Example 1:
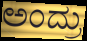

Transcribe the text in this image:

ಅಂದ್ರು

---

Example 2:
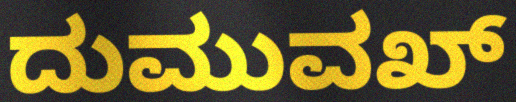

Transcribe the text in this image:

ದುಮುವಖ್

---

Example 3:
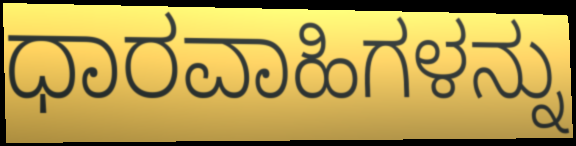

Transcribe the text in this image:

ಧಾರವಾಹಿಗಳನ್ನು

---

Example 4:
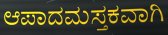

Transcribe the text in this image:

ಆಪಾದಮಸ್ತಕವಾಗಿ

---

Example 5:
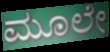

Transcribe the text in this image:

ಮೂಲೇ